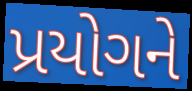
પ્રયોગને